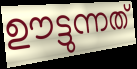
ഊട്ടുന്നത്